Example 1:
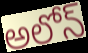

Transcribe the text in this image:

అలోన్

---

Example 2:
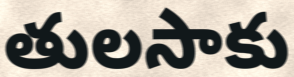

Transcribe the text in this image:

తులసాకు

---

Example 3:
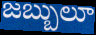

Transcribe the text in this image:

జబ్బులూ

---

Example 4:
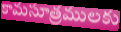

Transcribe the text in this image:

కామసూత్రములకు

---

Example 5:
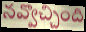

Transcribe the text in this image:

నవ్వొచ్చింది